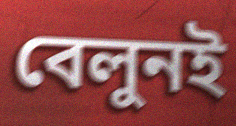
বেলুনই